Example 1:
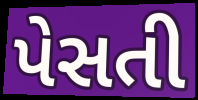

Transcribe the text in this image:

પેસતી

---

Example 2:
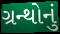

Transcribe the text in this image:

ગ્રન્થોનું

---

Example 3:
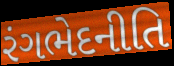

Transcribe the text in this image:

રંગભેદનીતિ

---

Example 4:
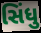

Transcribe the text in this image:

સિંધુ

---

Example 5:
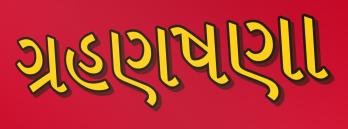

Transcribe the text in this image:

ગ્રહણષણા